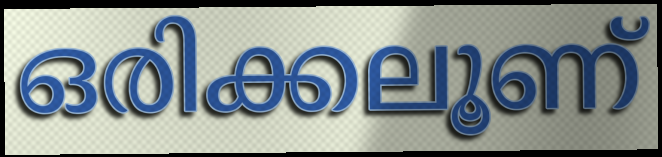
ഒരിക്കലൂണ്